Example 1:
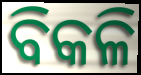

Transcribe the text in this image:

ବିକଳି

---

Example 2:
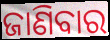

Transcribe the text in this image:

ଜାଣିବାର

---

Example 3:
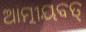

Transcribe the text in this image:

ଆତ୍ମୀୟବତ୍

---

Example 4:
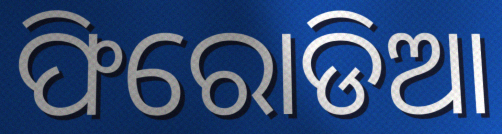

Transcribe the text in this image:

ଫିରୋଡିଆ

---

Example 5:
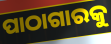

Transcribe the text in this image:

ପାଠାଗାରକୁ